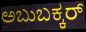
ಅಬುಬಕ್ಕರ್